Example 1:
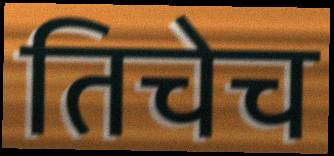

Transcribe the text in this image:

तिचेच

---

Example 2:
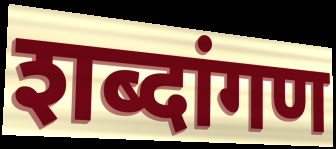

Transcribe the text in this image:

शब्दांगण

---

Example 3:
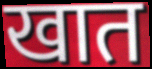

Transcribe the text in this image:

खात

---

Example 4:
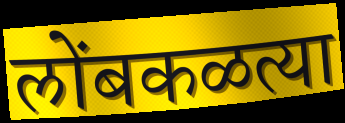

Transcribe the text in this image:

लोंबकळत्या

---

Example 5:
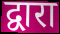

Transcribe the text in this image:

द्वारा